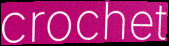
crochet